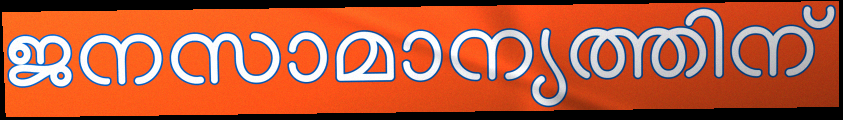
ജനസാമാന്യത്തിന്